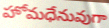
హోమధేనువుగా